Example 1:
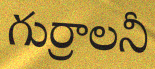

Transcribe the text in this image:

గుర్రాలనీ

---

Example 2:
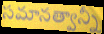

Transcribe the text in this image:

సమానత్వాన్నీ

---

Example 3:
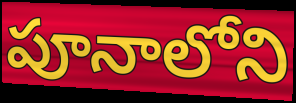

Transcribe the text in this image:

పూనాలోని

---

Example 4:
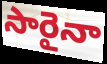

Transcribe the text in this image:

సారైనా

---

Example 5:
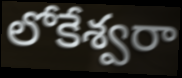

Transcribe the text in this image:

లోకేశ్వరా